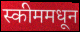
स्कीममधून